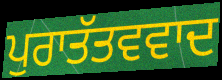
ਪੁਰਾਤੱਤਵਵਾਦ